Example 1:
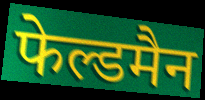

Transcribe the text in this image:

फेल्डमैन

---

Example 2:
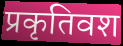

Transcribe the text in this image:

प्रकृतिवश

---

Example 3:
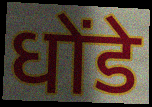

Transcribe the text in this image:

धोंडे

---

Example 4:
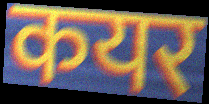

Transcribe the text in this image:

कयर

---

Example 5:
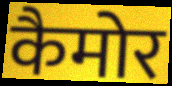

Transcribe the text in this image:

कैमोर